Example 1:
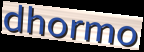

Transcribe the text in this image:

dhormo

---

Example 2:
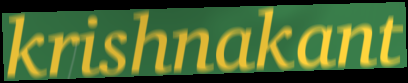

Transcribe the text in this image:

krishnakant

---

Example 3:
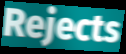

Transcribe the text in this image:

Rejects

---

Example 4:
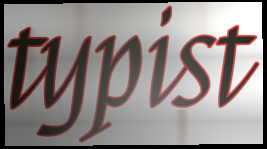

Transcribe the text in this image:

typist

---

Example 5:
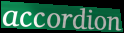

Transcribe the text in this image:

accordion